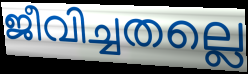
ജീവിച്ചതല്ലെ